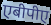
एबीपीए